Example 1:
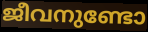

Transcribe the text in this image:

ജീവനുണ്ടോ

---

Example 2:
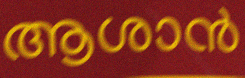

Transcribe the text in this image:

ആശാൻ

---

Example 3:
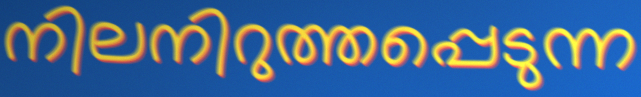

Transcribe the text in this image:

നിലനിറുത്തപ്പെടുന്ന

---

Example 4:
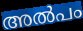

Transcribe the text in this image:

അൽപം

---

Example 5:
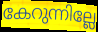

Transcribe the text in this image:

കേറുന്നില്ലേ